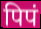
पिपं